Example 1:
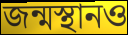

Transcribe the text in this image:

জন্মস্থানও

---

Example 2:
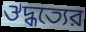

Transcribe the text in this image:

ঔদ্ধত্যের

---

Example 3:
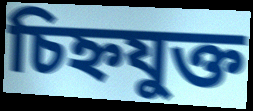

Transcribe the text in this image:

চিহ্নযুক্ত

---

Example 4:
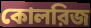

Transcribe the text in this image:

কোলরিজ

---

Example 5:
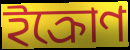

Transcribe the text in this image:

ইক্রোণ